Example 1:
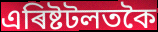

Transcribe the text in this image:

এৰিষ্টটলতকৈ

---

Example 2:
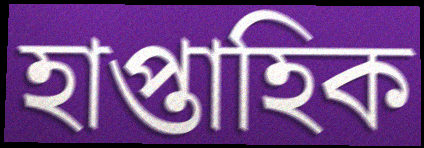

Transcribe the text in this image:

হাপ্তাহিক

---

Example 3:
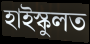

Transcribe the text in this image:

হাইস্কুলত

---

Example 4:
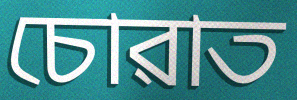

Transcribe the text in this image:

চোৱাত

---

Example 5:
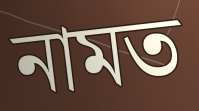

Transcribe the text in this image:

নামত